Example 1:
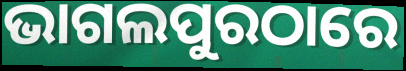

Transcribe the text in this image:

ଭାଗଲପୁରଠାରେ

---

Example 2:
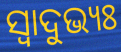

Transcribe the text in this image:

ସ୍ବାଦୁଭ୍ୟଃ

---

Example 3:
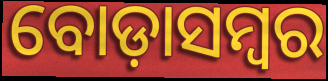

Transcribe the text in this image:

ବୋଡ଼ାସମ୍ବର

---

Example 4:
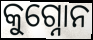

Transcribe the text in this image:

କୁଗ୍ନୋନ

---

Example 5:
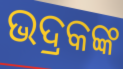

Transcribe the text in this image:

ଭଦ୍ରକଙ୍କ